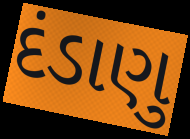
દંડાણુ